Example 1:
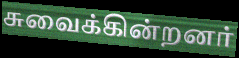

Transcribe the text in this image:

சுவைக்கின்றனர்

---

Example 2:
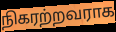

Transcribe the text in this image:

நிகரற்றவராக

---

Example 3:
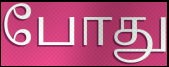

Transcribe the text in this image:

போது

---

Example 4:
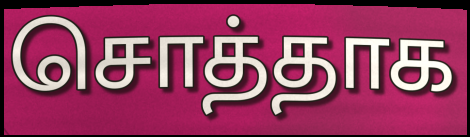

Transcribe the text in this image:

சொத்தாக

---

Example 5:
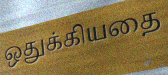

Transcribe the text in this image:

ஒதுக்கியதை